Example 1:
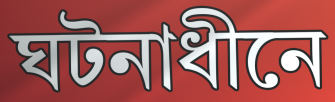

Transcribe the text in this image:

ঘটনাধীনে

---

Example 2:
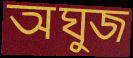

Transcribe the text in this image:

অঘুজ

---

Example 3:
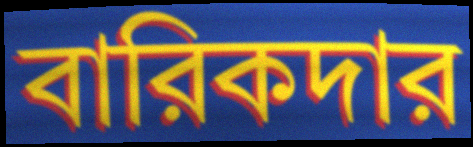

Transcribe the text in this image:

বারিকদার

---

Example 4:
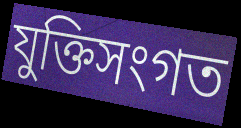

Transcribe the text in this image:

যুক্তিসংগত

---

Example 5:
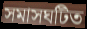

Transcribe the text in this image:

সমাসঘটিত